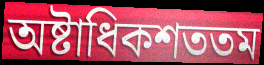
অষ্টাধিকশততম